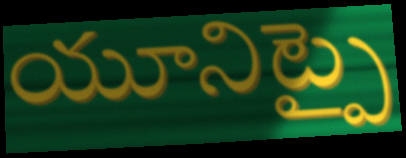
యూనిట్పై